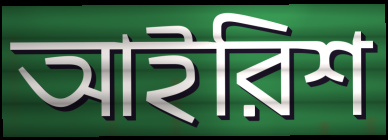
আইরিশ